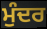
ਮੁੰਦਰ